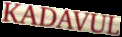
KADAVUL